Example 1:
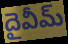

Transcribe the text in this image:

దైవీమ్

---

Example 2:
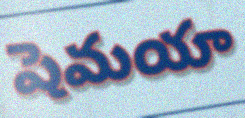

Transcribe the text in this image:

షెమయా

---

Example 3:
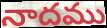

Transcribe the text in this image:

నాదము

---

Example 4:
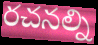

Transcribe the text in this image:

రచనల్ని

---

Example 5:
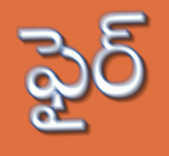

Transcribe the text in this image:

ఫైర్